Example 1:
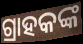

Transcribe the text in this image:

ଗ୍ରାହକଙ୍କ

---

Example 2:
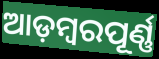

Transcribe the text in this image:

ଆଡ଼ମ୍ବରପୂର୍ଣ୍ଣ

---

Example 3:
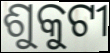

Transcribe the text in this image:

ଶୁକୁଟୀ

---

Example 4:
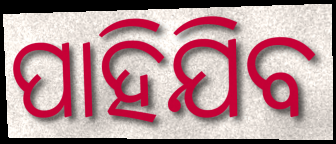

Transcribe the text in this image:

ପାହିଯିବ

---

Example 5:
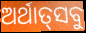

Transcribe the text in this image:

ଅର୍ଥାତ୍‌ସବୁ